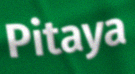
Pitaya